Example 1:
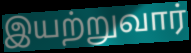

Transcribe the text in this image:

இயற்றுவார்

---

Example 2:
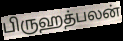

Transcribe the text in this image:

பிருஹத்பலன்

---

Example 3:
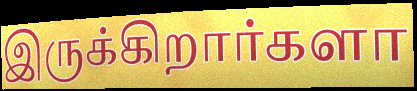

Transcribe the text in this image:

இருக்கிறார்களா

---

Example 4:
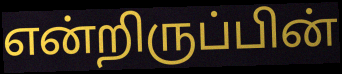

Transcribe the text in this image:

என்றிருப்பின்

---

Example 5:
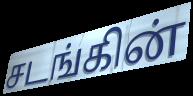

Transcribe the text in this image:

சடங்கின்